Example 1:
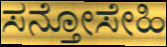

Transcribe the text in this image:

ಸನ್ತೋಸೇಹಿ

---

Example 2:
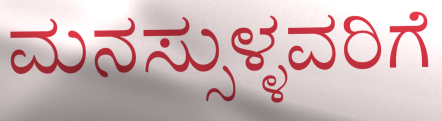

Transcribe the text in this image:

ಮನಸ್ಸುಳ್ಳವರಿಗೆ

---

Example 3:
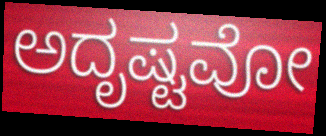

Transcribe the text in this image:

ಅದೃಷ್ಟವೋ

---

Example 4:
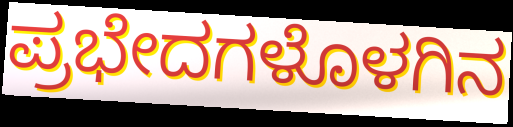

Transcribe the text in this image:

ಪ್ರಭೇದಗಳೊಳಗಿನ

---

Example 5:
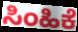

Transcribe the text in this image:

ಸಿಂಹಿಕೆ